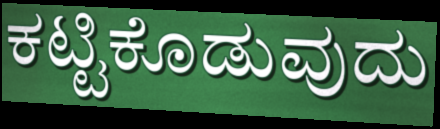
ಕಟ್ಟಿಕೊಡುವುದು